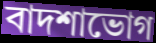
বাদশাভোগ